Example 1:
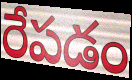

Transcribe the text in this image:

రేపడం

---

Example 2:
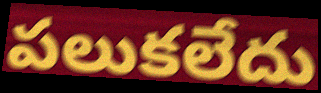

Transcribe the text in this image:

పలుకలేదు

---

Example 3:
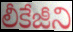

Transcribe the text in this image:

లీకేజీని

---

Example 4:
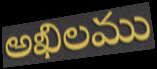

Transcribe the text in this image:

అఖిలము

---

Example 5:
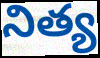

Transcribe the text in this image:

నిత్య